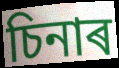
চিনাৰ